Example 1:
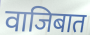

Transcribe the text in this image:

वाजिबात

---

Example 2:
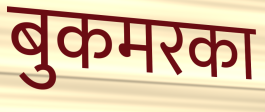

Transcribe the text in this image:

बुकमरका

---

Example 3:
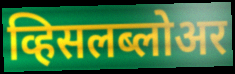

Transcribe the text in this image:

व्हिसलब्लोअर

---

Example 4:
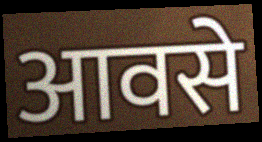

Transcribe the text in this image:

आवसे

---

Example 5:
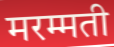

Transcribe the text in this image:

मरम्मती